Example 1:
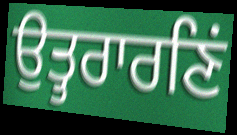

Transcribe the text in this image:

ਉਤ੍ਤਰਾਰਣਿਂ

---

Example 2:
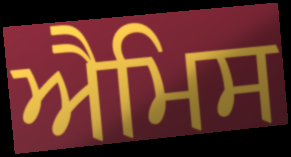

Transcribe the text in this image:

ਐਮਿਸ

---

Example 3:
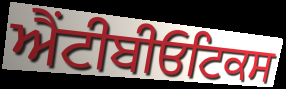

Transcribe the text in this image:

ਐਂਟੀਬੀਓਟਿਕਸ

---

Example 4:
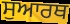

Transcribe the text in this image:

ਸੁਆਰਥ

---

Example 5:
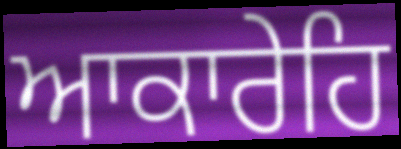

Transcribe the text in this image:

ਆਕਾਰੇਹਿ